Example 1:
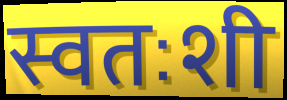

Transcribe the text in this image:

स्वतःशी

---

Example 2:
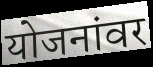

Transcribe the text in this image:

योजनांवर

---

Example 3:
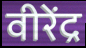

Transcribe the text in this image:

वीरेंद्र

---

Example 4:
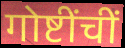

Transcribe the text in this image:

गोष्टींचीं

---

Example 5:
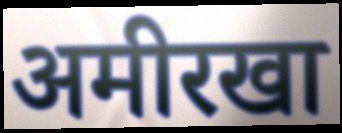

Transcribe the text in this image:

अमीरखा